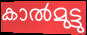
കാൽമുട്ടു